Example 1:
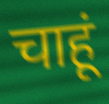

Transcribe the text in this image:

चाहूं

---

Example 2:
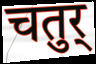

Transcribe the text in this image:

चतुर्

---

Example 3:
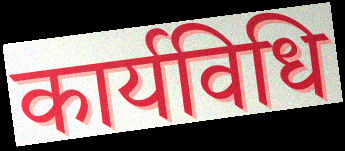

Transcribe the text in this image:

कार्यविधि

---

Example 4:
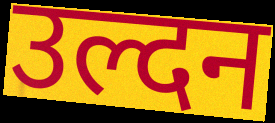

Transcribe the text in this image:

उल्दन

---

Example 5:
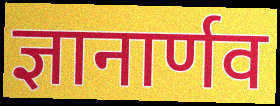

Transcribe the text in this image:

ज्ञानार्णव